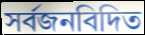
সর্বজনবিদিত